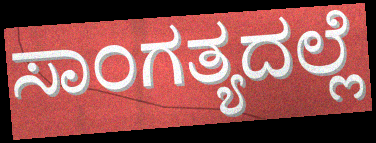
ಸಾಂಗತ್ಯದಲ್ಲೆ